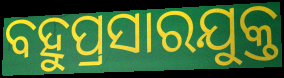
ବହୁପ୍ରସାରଯୁକ୍ତ